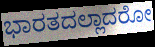
ಭಾರತದಲ್ಲಾದರೋ